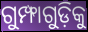
ଗୁମ୍ଫାଗୁଡ଼ିକୁ